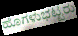
ಹೊಗಳುಭಟ್ಟರು